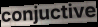
conjuctive